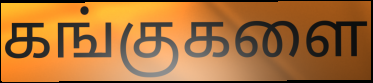
கங்குகளை